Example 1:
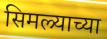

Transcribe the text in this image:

सिमल्याच्या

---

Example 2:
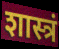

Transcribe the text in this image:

शास्त्रं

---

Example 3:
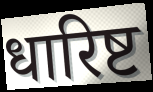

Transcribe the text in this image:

धारिष्ट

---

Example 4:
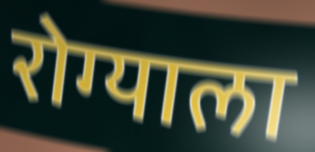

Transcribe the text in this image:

रोग्याला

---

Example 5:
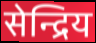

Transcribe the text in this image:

सेन्द्रिय